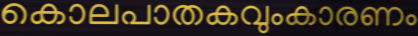
കൊലപാതകവുംകാരണം